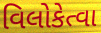
વિલોકેત્વા